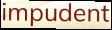
impudent